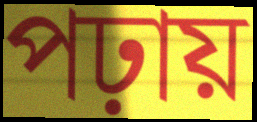
পঢ়ায়